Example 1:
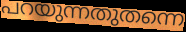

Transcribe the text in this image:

പറയുന്നതുതന്നെ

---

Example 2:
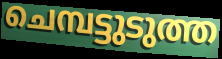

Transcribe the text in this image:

ചെമ്പട്ടുടുത്ത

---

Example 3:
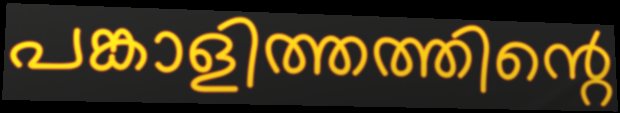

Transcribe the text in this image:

പങ്കാളിത്തത്തിന്റെ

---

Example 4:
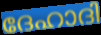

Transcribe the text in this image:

ദേഹാദി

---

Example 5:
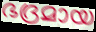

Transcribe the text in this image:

ഭദ്രമായ